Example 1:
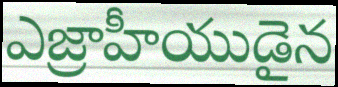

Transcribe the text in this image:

ఎజ్రాహీయుడైన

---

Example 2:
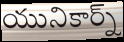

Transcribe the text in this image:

యునికార్న్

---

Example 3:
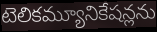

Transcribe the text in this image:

టెలికమ్యూనికేషన్లను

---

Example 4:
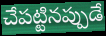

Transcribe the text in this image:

చేపట్టినప్పుడే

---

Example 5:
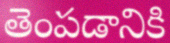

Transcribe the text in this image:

తెంపడానికి